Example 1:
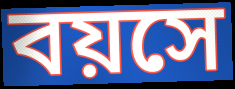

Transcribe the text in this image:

বয়সে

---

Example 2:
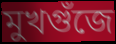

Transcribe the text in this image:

মুখগুঁজে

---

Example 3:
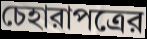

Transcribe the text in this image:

চেহারাপত্রের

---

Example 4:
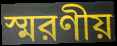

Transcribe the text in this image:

স্মরণীয়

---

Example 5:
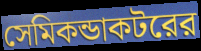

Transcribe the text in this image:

সেমিকন্ডাকটরের